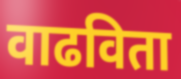
वाढविता